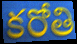
కరోతి